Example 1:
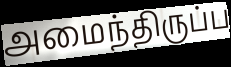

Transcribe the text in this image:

அமைந்திருப்ப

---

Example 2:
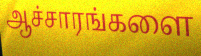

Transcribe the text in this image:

ஆச்சாரங்களை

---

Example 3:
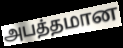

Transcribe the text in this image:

அபத்தமான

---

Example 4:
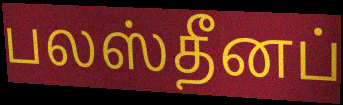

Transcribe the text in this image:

பலஸ்தீனப்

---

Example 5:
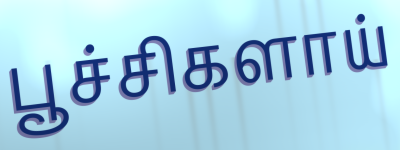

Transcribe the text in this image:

பூச்சிகளாய்